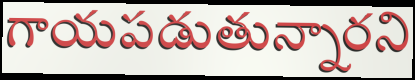
గాయపడుతున్నారని